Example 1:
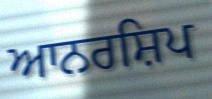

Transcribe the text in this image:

ਆਨਰਸ਼ਿਪ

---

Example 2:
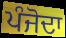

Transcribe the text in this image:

ਪੰਜੋਦਾ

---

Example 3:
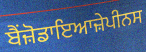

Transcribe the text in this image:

ਬੈਂਜ਼ੋਡਾਇਆਜ਼ੇਪੀਨਸ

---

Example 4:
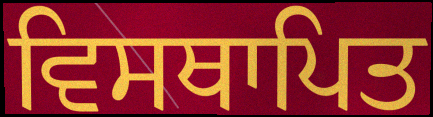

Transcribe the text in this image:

ਵਿਸਥਾਪਿਤ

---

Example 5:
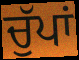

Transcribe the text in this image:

ਚੁੱਪਾਂ